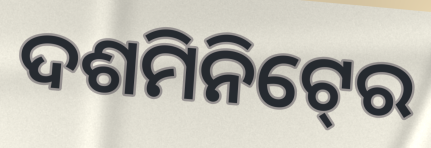
ଦଶମିନିଟ୍‍ରେ